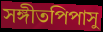
সঙ্গীতপিপাসু